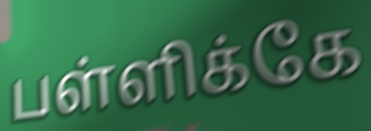
பள்ளிக்கே